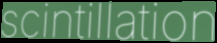
scintillation